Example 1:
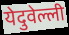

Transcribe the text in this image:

येदुवेल्ली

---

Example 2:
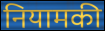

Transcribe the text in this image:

नियामकी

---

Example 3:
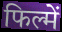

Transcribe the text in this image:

फिल्‍में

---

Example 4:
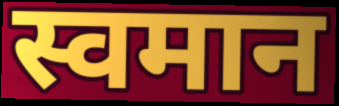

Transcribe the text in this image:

स्वमान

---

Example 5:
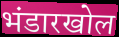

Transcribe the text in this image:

भंडारखोल